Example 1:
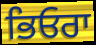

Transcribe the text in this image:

ਭਿਓਰਾ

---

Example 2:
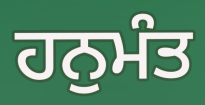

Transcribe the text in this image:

ਹਨੁਮੰਤ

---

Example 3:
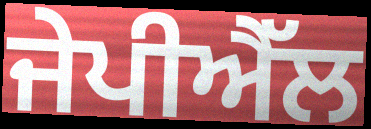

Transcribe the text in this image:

ਜੇਪੀਐੱਲ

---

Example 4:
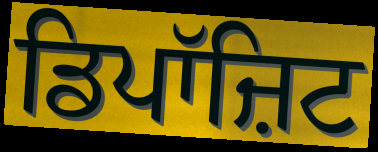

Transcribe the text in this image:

ਡਿਪਾੱਜ਼ਿਟ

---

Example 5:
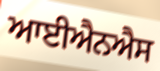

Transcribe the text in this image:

ਆਈਐਨਐਸ